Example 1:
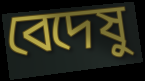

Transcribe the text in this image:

বেদেষু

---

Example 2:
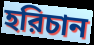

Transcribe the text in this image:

হরিচান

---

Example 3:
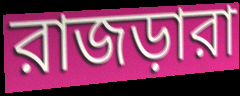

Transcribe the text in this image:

রাজড়ারা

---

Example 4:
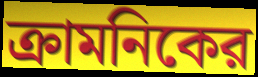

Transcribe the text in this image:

ক্রামনিকের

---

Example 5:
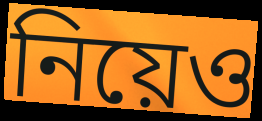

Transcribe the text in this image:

নিয়েও